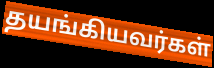
தயங்கியவர்கள்